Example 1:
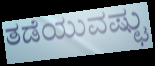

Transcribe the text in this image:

ತಡೆಯುವಷ್ಟು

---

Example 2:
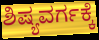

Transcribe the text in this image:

ಶಿಷ್ಯವರ್ಗಕ್ಕೆ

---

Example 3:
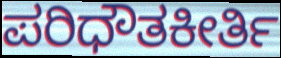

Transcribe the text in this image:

ಪರಿಧೌತಕೀರ್ತಿ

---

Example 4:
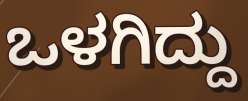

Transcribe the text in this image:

ಒಳಗಿದ್ದು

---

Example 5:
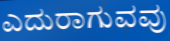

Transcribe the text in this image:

ಎದುರಾಗುವವು